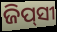
ଜିପ୍‍ସୀ